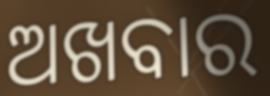
ଅଖବାର